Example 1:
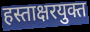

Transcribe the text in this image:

हस्ताक्षरयुक्त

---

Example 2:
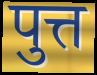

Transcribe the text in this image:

पुत्त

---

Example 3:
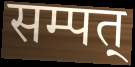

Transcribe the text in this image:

सम्पत्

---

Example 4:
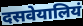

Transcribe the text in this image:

दसवेयालियं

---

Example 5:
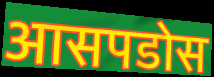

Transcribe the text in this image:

आसपडोस